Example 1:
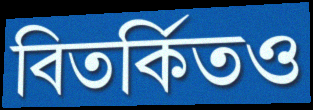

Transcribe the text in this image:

বিতর্কিতও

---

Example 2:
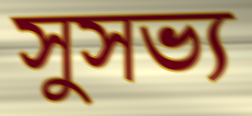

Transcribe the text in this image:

সুসভ্য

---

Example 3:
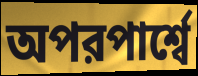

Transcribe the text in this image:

অপরপার্শ্বে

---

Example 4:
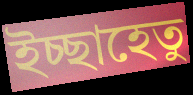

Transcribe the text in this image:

ইচ্ছাহেতু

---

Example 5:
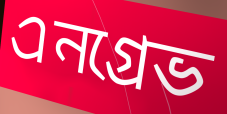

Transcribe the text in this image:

এনগ্রেভ